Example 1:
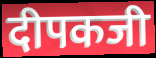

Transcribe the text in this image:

दीपकजी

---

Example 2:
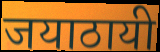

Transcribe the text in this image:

जयाठायी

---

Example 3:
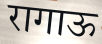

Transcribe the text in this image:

रागाऊ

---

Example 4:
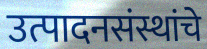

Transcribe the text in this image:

उत्पादनसंस्थांचे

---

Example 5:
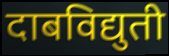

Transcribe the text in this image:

दाबविद्युती